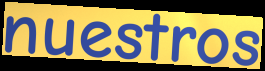
nuestros